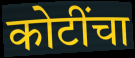
कोटींचा